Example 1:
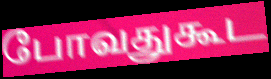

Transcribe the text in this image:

போவதுகூட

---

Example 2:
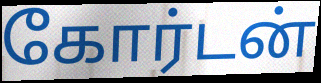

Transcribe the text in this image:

கோர்டன்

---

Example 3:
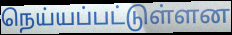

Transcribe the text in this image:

நெய்யப்பட்டுள்ளன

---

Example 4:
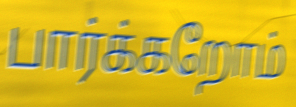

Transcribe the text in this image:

பார்க்கறோம்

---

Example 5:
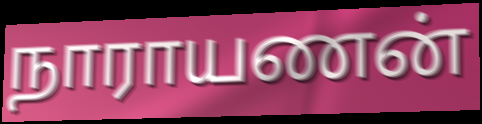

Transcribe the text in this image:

நாராயணன்